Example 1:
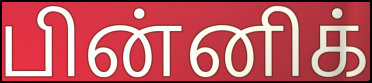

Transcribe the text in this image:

பின்னிக்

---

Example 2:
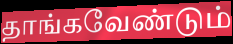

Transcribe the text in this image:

தாங்கவேண்டும்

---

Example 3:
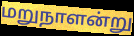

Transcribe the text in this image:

மறுநாளன்று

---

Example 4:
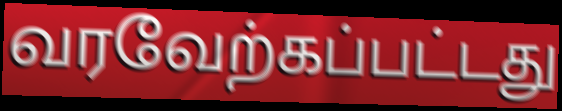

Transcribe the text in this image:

வரவேற்கப்பட்டது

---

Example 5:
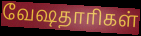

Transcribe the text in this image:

வேஷதாரிகள்